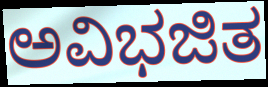
ಅವಿಭಜಿತ